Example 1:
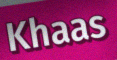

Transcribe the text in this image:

Khaas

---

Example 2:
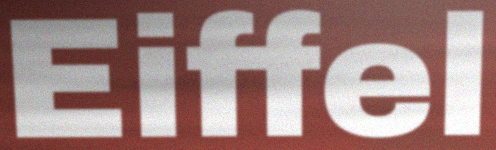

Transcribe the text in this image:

Eiffel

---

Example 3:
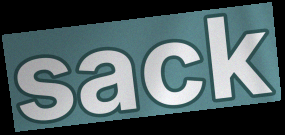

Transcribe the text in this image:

sack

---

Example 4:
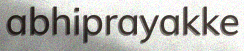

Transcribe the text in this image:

abhiprayakke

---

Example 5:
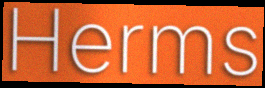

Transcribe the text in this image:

Herms